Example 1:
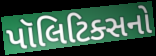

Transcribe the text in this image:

પૉલિટિક્સનો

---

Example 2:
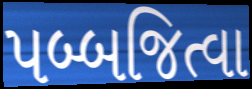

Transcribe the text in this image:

પબ્બજિત્વા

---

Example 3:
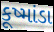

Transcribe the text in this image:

કૂષ્માંડા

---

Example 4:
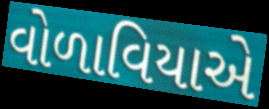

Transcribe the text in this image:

વોળાવિયાએ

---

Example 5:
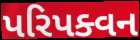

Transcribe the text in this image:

પરિપક્વન